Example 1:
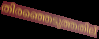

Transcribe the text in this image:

തിരഞ്ഞെടുത്തതില്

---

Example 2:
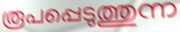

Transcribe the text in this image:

രൂപപ്പെടുത്തുന്ന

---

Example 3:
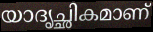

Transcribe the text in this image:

യാദൃച്ഛികമാണ്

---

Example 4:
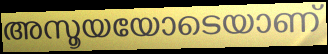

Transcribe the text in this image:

അസൂയയോടെയാണ്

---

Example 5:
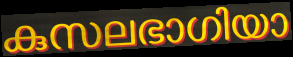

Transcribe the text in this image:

കുസലഭാഗിയാ